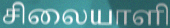
சிலையாளி